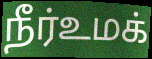
நீர்உமக்